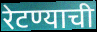
रेटण्याची